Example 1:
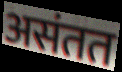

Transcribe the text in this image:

असंतत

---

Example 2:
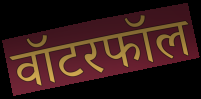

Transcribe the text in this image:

वॉटरफॉल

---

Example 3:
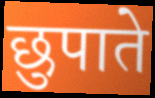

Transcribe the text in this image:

छुपाते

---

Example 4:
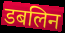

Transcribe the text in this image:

डबलिन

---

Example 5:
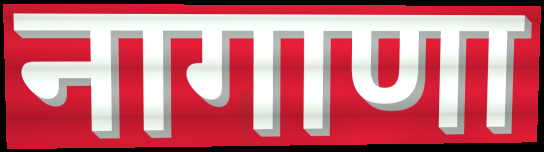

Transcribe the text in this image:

नागाणा